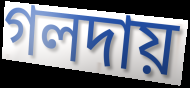
গলদায়